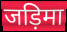
जड़िमा